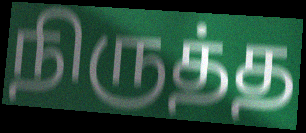
நிருத்த